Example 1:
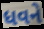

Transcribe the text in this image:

ધવને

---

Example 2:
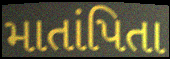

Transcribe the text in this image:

માતાંપિતા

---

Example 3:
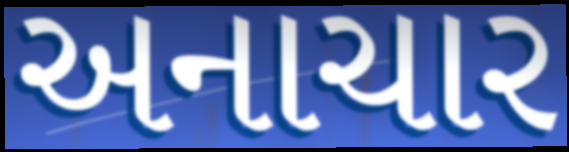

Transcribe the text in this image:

અનાચાર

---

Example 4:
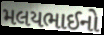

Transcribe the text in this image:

મલયભાઈનો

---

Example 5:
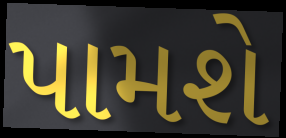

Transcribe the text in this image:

પામશે